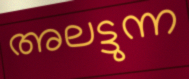
അലട്ടുന്ന